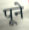
पूने